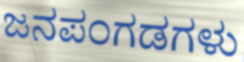
ಜನಪಂಗಡಗಳು